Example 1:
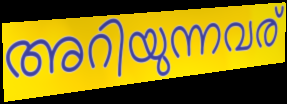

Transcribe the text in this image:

അറിയുന്നവര്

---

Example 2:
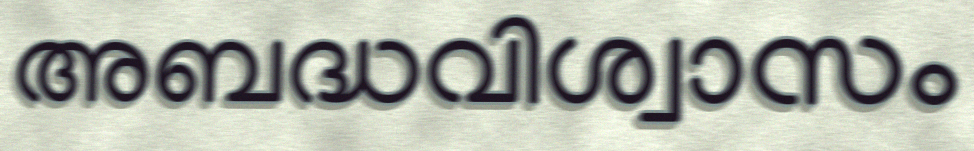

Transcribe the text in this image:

അബദ്ധവിശ്വാസം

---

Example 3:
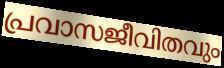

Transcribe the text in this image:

പ്രവാസജീവിതവും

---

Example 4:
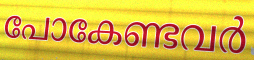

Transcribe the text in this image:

പോകേണ്ടവർ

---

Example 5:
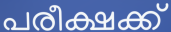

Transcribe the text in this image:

പരീക്ഷക്ക്